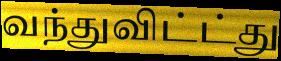
வந்துவிட்ட்து